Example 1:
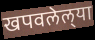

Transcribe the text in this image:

खपवलेल्या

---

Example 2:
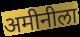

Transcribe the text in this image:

अमीनीला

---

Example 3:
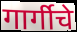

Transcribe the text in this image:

गार्गीचे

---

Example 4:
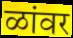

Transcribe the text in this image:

ळांवर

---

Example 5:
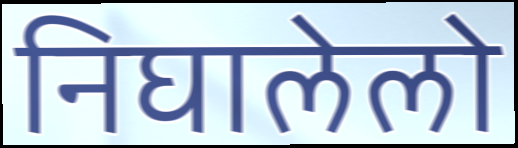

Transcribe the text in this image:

निघालेलो